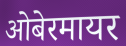
ओबेरमायर